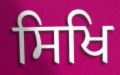
ਸਿਖਿ